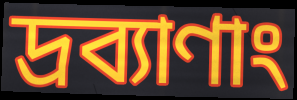
দ্রব্যাণাং